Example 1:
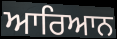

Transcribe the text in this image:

ਆਰਿਆਨ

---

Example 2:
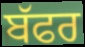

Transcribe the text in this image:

ਬੱਫਰ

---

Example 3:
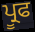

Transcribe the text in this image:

ਪ੍ਰੂਫ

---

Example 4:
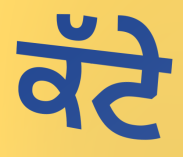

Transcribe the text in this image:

ਕੱਟੇ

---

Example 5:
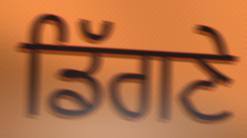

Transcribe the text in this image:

ਡਿੱਗਣੇ